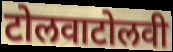
टोलवाटोलवी